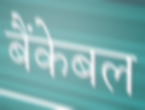
बैंकेबल